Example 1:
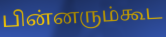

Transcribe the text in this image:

பின்னரும்கூட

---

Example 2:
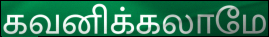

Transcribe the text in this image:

கவனிக்கலாமே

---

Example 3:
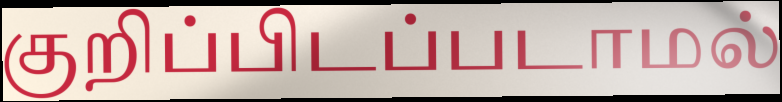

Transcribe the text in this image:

குறிப்பிடப்படாமல்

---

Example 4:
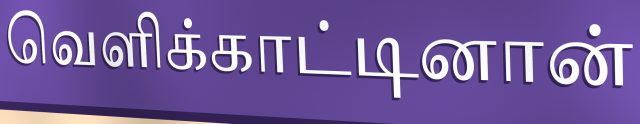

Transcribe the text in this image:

வெளிக்காட்டினான்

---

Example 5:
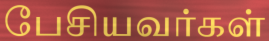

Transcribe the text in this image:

பேசியவர்கள்